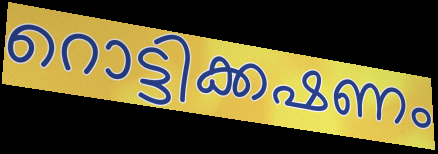
റൊട്ടിക്കഷണം